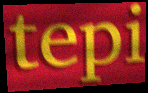
tepi